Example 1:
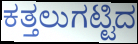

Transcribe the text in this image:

ಕತ್ತಲುಗಟ್ಟಿದ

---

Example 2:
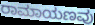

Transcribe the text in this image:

ರಾಮಾಯಣವು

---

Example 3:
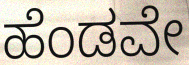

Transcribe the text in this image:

ಹೆಂಡವೇ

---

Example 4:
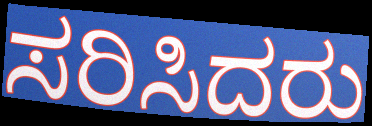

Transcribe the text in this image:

ಸರಿಸಿದರು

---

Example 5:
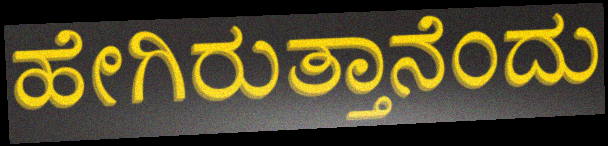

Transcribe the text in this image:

ಹೇಗಿರುತ್ತಾನೆಂದು